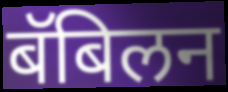
बॅबिलन